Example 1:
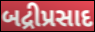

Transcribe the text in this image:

બદ્રીપ્રસાદ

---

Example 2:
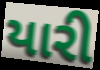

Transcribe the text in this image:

યારી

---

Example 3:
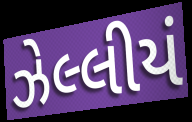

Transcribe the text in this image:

ઝેલ્લીયં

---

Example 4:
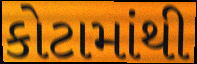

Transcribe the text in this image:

કોટામાંથી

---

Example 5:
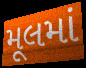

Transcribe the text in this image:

મૂલમાં